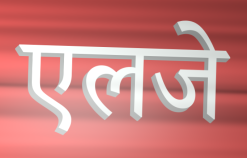
एलजे